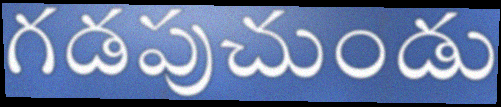
గడపుచుండు